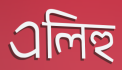
এলিহু